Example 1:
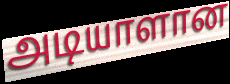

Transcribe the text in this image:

அடியாளான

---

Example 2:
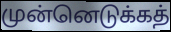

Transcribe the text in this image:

முன்னெடுக்கத்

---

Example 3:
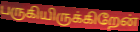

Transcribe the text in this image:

பருகியிருக்கிறேன்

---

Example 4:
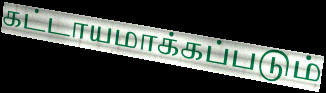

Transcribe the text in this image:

கட்டாயமாக்கப்படும்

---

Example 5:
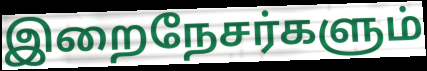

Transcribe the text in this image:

இறைநேசர்களும்